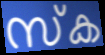
സ്ക